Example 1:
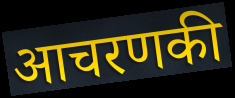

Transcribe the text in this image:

आचरणकी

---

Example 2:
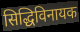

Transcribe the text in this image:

सिद्धिविनायक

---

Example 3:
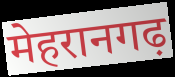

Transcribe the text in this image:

मेहरानगढ़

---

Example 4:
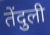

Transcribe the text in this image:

तेंदुली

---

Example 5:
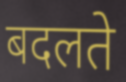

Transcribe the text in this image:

बदलते